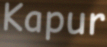
Kapur